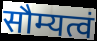
सौम्यत्वं